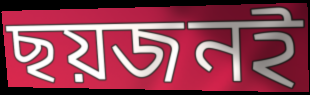
ছয়জনই